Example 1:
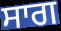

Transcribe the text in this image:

ਸਾਗ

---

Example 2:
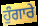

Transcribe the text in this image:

ਹੁੰਗਾਰੇ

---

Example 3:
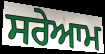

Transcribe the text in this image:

ਸਰੇਆਮ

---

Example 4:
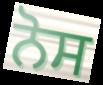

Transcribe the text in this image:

ਨੋਸ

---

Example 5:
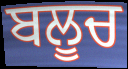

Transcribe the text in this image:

ਬਲੂਚ